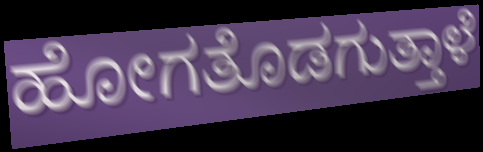
ಹೋಗತೊಡಗುತ್ತಾಳೆ